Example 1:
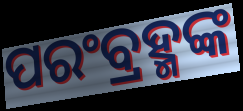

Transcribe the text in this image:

ପରଂବ୍ରହ୍ମଙ୍କ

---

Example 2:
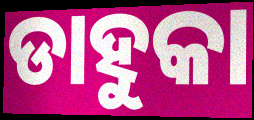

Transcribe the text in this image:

ଡାହୁକା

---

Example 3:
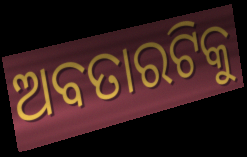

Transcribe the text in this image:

ଅବତାରଟିକୁ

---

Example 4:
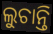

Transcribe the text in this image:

ଲୁଚାନ୍ତି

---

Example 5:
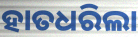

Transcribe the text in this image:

ହାତଧରିଲା